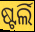
ଷ୍ଟର୍ଲି